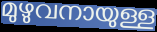
മുഴുവനായുള്ള